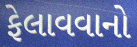
ફેલાવવાનો